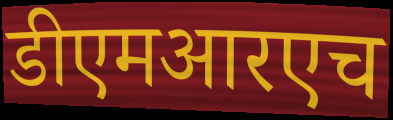
डीएमआरएच